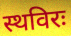
स्थविरः